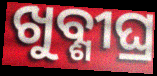
ଖୁବ୍ଶୀଘ୍ର